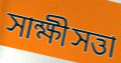
সাক্ষীসত্তা